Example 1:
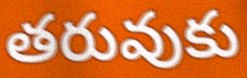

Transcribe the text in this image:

తరువుకు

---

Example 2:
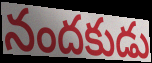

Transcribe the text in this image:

నందకుడు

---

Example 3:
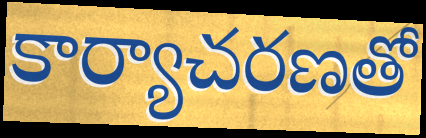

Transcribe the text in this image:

కార్యాచరణతో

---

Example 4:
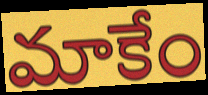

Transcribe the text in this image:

మాకేం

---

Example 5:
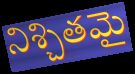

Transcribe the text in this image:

నిశ్చితమై